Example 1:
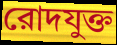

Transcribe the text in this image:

রোদযুক্ত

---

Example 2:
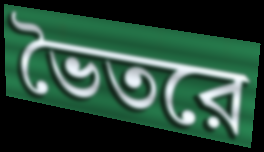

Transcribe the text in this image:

ভৈতরে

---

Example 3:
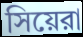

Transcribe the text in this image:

সিয়েরা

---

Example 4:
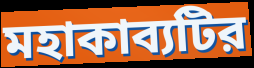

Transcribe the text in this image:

মহাকাব্যটির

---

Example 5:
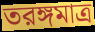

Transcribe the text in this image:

তরঙ্গমাত্র